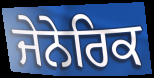
ਜੇਨੇਰਿਕ